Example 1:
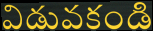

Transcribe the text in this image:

విడువకండి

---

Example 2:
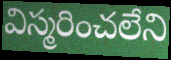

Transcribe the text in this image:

విస్మరించలేని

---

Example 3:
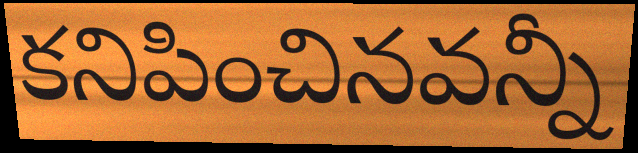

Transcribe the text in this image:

కనిపించినవన్నీ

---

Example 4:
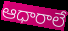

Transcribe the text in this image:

ఆధారాలే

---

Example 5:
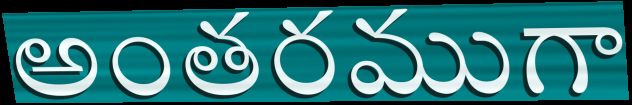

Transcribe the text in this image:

అంతరముగా